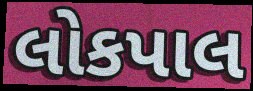
લોકપાલ